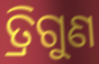
ତ୍ରିଗୁଣ